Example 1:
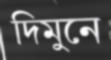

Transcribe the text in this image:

দিমুনে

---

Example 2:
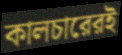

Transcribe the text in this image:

কালচারেরই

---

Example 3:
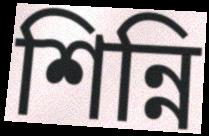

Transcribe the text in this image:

শিন্নি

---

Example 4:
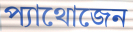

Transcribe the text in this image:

প্যাথোজেন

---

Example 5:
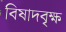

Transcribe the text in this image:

বিষাদবৃক্ষ